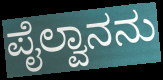
ಪೈಲ್ವಾನನು